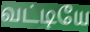
வட்டியே